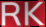
RK